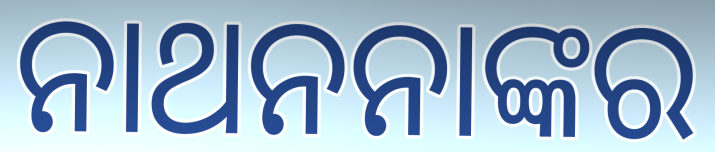
ନାଥନନାଙ୍କର